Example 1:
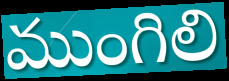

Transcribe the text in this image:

ముంగిలి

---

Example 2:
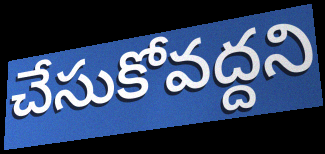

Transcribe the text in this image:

చేసుకోవద్దని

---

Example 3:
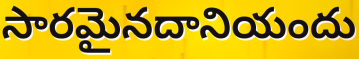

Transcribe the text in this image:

సారమైనదానియందు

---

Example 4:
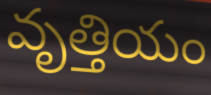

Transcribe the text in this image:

వృత్తియం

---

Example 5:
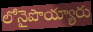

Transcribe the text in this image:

లోనైపొయ్యారు